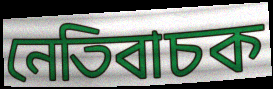
নেতিবাচক